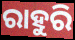
ରାହୁରି